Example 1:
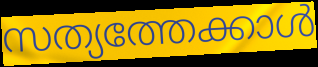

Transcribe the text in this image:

സത്യത്തേക്കാൾ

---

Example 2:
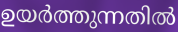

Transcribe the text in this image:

ഉയർത്തുന്നതിൽ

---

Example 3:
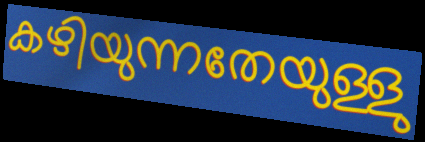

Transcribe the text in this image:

കഴിയുന്നതേയുള്ളു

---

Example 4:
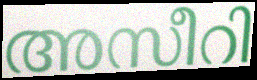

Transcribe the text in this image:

അസീറി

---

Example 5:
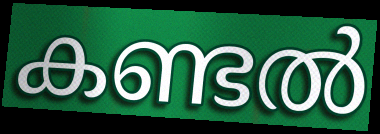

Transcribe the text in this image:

കണ്ടൽ